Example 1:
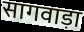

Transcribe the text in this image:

सागवाड़ा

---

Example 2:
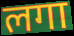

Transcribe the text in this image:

लगा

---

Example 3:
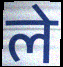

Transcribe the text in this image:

ले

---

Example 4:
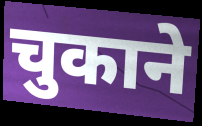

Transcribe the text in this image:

चुकाने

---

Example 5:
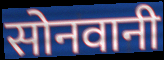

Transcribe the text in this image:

सोनवानी